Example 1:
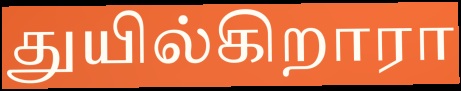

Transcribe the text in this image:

துயில்கிறாரா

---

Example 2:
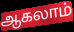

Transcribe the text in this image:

ஆகலாம்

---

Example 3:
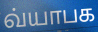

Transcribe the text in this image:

வ்யாபக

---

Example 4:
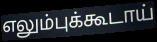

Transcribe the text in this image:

எலும்புக்கூடாய்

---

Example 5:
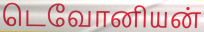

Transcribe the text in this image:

டெவோனியன்